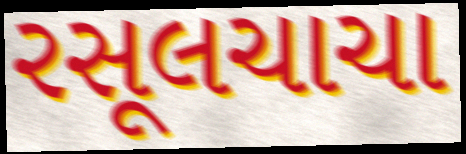
રસૂલચાચા